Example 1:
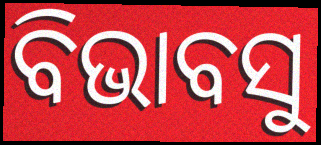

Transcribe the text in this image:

ବିଭାବସୁ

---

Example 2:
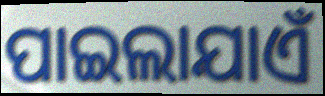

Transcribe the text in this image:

ପାଇଲାଯାଏଁ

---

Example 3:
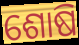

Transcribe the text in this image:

ଶୋଷି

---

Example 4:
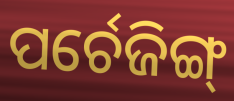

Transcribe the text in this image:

ପର୍ଚେଜିଙ୍ଗ୍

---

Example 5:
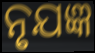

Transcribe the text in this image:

ନୃଯଜ୍ଞ